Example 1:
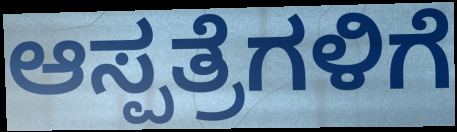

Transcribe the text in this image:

ಆಸ್ಪತ್ರೆಗಳಿಗೆ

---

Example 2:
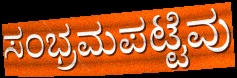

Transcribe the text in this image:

ಸಂಭ್ರಮಪಟ್ಟೆವು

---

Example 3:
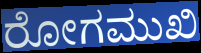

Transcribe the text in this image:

ರೋಗಮುಖಿ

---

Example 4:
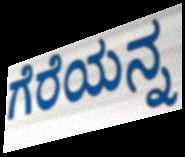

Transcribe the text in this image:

ಗೆರೆಯನ್ನ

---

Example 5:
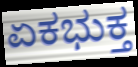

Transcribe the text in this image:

ಏಕಭುಕ್ತ